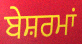
ਬੇਸ਼ਰਮਾਂ